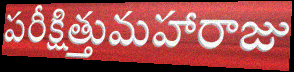
పరీక్షిత్తుమహారాజు